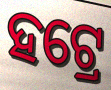
ହଟ୍ରେ